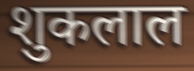
शुकलाल